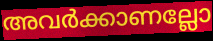
അവർക്കാണല്ലോ